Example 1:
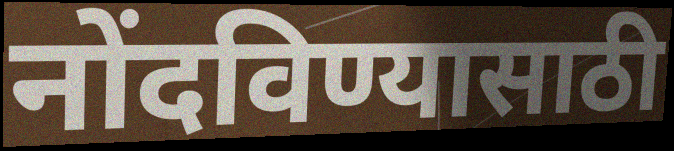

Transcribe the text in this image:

नोंदविण्यासाठी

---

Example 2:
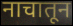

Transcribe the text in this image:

नाचातून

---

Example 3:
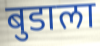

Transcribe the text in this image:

बुडाला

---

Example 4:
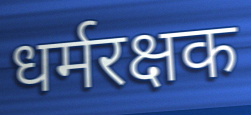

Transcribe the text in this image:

धर्मरक्षक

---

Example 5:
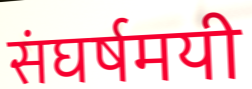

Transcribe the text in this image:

संघर्षमयी